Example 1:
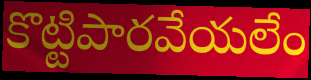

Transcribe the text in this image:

కొట్టిపారవేయలేం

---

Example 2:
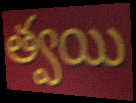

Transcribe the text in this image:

త్వయి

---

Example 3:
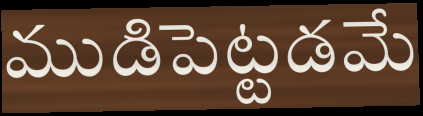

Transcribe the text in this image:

ముడిపెట్టడమే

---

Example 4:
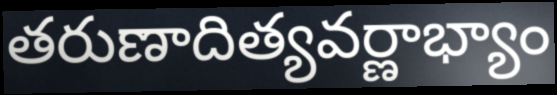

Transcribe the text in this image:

తరుణాదిత్యవర్ణాభ్యాం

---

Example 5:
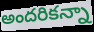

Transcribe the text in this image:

అందరికన్నా